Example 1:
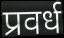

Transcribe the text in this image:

प्रवर्ध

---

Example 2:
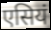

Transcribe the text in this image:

एसियं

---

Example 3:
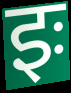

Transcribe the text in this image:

इः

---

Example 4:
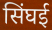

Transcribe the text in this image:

सिंघई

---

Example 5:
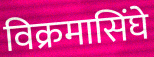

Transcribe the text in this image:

विक्रमासिंघे